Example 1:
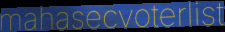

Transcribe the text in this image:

mahasecvoterlist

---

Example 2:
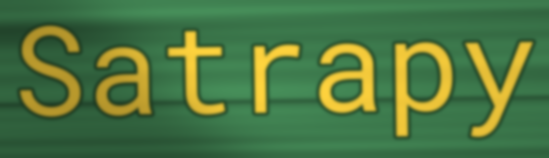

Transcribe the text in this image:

Satrapy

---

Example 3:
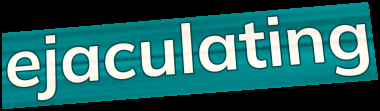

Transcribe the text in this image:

ejaculating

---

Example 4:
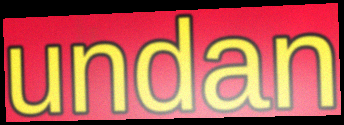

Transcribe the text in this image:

undan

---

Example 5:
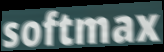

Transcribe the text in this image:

softmax